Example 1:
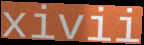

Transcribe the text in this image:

xivii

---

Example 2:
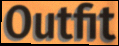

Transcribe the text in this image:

Outfit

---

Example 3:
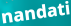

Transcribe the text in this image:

nandati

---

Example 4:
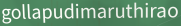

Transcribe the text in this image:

gollapudimaruthirao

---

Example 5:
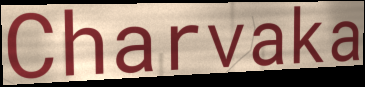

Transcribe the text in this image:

Charvaka